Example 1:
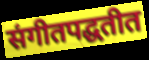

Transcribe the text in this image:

संगीतपद्धतीत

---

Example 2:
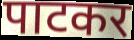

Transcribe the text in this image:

पाटकर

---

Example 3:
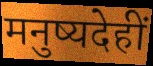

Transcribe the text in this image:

मनुष्यदेहीं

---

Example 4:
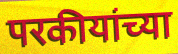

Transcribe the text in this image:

परकीयांच्या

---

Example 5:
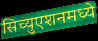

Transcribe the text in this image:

सिच्युएशनमध्ये